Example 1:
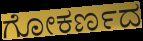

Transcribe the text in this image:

ಗೋಕರ್ಣದ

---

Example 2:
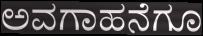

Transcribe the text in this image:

ಅವಗಾಹನೆಗೂ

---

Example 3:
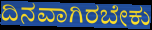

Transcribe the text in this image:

ದಿನವಾಗಿರಬೇಕು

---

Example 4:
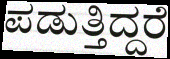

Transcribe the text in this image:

ಪಡುತ್ತಿದ್ದರೆ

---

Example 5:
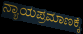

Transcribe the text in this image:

ನ್ಯಾಯಪ್ರಮಾಣಕ್ಕೆ